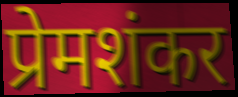
प्रेमशंकर